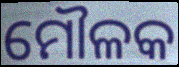
ମୌଳକ